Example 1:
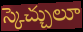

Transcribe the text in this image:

స్కెచ్చులూ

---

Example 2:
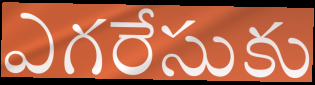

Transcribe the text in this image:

ఎగరేసుకు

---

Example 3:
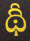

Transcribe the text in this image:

థీ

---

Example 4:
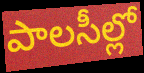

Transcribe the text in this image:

పాలసీల్లో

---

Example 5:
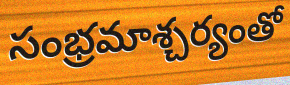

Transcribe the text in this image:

సంభ్రమాశ్చర్యంతో